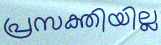
പ്രസക്തിയില്ല